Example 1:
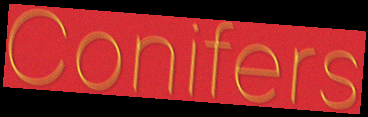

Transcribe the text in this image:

Conifers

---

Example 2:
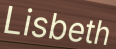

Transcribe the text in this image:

Lisbeth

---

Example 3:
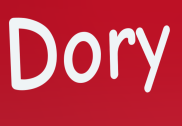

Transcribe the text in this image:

Dory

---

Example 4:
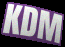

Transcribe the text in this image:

KDM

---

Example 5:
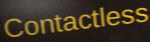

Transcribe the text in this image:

Contactless